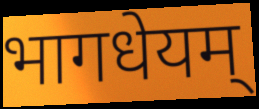
भागधेयम्